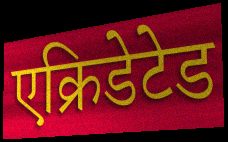
एक्रिडेटेड